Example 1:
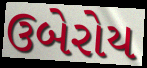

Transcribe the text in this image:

ઉબેરોય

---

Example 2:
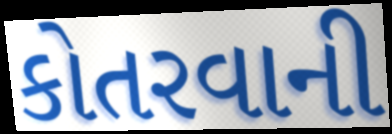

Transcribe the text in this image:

કોતરવાની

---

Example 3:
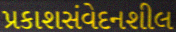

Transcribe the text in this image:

પ્રકાશસંવેદનશીલ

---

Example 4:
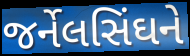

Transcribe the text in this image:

જર્નેલસિંઘને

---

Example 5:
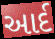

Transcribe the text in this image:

આર્દ